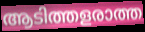
ആടിത്തളരാത്ത